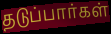
தடுப்பார்கள்